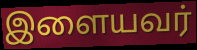
இளையவர்